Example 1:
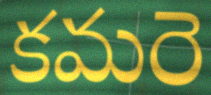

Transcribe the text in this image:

కమరె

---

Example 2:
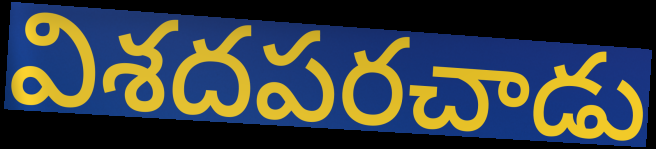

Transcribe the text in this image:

విశదపరచాడు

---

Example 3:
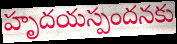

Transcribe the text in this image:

హృదయస్పందనకు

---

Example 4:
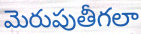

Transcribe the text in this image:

మెరుపుతీగలా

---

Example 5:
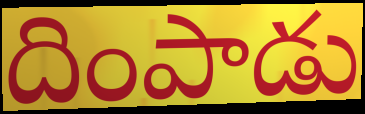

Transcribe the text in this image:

దింపాడు